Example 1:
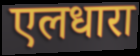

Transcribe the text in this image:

एलधारा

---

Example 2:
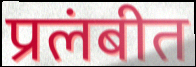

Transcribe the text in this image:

प्रलंबीत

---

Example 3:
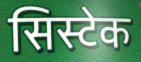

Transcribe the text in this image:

सिस्टेक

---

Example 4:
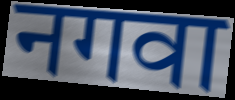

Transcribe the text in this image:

नगवा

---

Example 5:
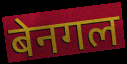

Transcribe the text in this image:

बेनगल